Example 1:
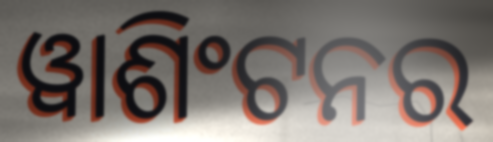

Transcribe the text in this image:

ୱାଶିଂଟନର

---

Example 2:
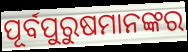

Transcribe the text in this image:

ପୂର୍ବପୁରୁଷମାନଙ୍କର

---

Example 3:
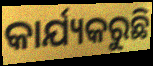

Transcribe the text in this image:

କାର୍ଯ୍ୟକରୁଛି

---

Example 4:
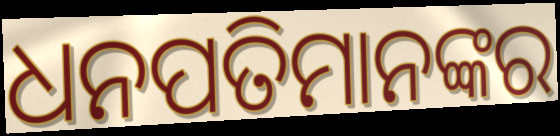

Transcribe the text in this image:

ଧନପତିମାନଙ୍କର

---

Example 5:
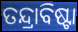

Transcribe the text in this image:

ତନ୍ଦ୍ରାବିଷ୍ଟା